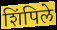
शिंपिले